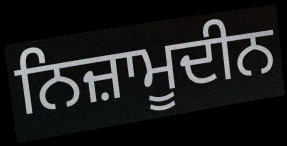
ਨਿਜ਼ਾਮੂਦੀਨ